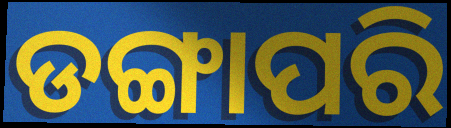
ଡଙ୍ଗାପରି